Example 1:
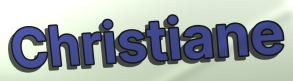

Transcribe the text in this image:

Christiane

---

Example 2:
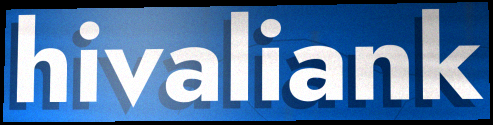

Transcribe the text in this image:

hivaliank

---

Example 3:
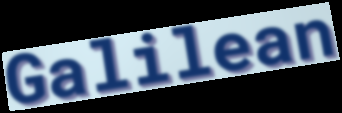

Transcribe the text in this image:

Galilean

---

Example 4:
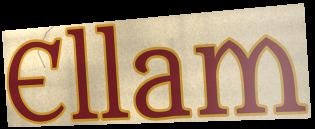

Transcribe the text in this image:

Ellam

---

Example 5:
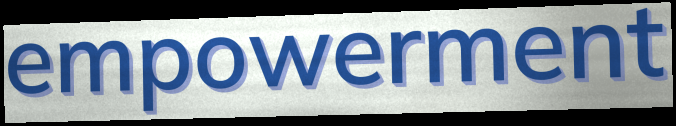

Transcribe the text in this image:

empowerment